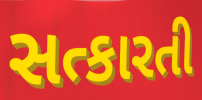
સત્કારતી